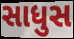
સાધુસ